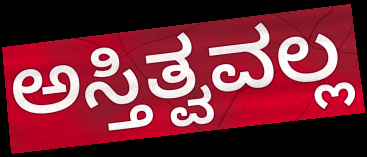
ಅಸ್ತಿತ್ವವಲ್ಲ